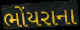
ભોંયરાના